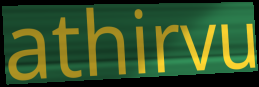
athirvu